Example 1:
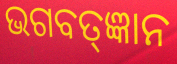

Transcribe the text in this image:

ଭଗବତ୍‌ଜ୍ଞାନ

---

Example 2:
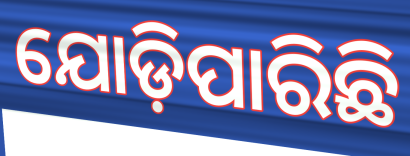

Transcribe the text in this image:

ଯୋଡ଼ିପାରିଛି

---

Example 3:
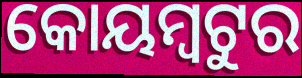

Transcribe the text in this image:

କୋୟମ୍ବଟୁର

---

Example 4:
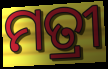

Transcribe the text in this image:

ମତ୍ରୀ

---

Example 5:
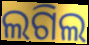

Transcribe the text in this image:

ଲଗିଲ